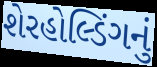
શેરહોલ્ડિંગનું